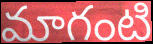
మాగంటి